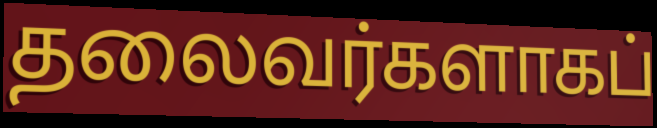
தலைவர்களாகப்